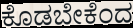
ಕೊಡಬೇಕೆಂದ